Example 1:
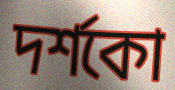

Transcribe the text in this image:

দৰ্শকো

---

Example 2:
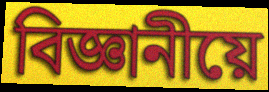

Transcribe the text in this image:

বিজ্ঞানীয়ে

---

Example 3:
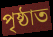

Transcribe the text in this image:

পৃষ্ঠাত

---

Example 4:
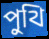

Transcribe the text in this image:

পুথি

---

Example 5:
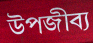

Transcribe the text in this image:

উপজীব্য